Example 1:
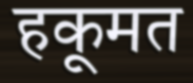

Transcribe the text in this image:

हकूमत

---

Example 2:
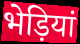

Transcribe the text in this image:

भेड़ियां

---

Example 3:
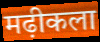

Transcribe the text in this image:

मढ़ीकला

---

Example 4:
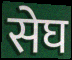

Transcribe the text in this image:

सेघ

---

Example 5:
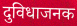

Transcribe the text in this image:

दुविधाजनक